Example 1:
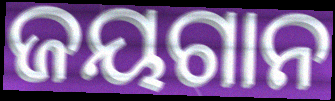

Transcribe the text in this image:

ଜୟଗାନ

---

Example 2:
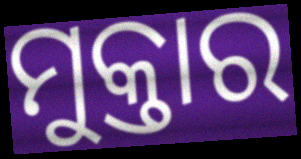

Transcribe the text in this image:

ମୁକ୍ତାର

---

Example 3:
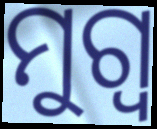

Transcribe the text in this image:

ମୁଗ୍ୱ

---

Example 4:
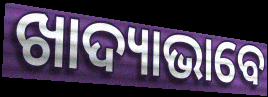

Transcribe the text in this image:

ଖାଦ୍ୟାଭାବେ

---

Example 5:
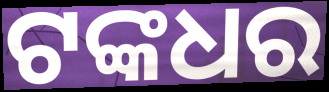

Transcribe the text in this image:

ଟଙ୍କଧର